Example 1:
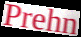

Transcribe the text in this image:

Prehn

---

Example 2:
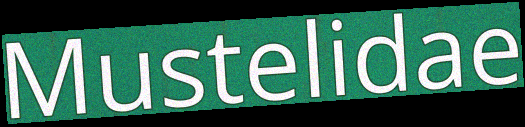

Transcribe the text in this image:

Mustelidae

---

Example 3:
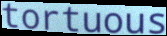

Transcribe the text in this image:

tortuous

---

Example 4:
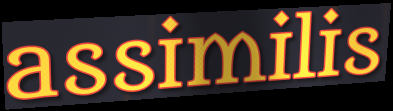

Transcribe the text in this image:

assimilis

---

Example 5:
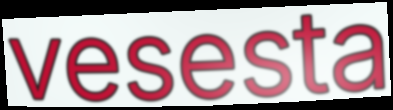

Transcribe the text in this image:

vesesta